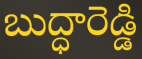
బుద్ధారెడ్డి